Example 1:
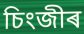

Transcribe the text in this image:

চিংজীৰ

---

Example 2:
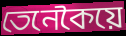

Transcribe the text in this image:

তেনেকৈয়ে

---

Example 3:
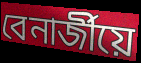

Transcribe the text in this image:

বেনাৰ্জীয়ে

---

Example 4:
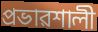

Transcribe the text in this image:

প্ৰভাৱশালী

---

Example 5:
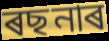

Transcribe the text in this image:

ৰছনাৰ